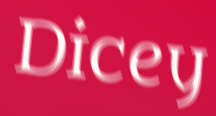
Dicey